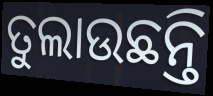
ତୁଲାଉଛନ୍ତି